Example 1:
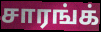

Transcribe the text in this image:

சாரங்க்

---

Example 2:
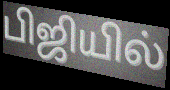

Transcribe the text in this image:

பிஜியில்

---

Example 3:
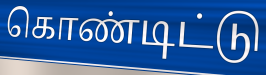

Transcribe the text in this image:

கொண்டிட்டு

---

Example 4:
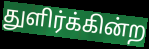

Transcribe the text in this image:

துளிர்க்கின்ற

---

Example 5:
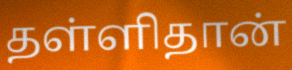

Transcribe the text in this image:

தள்ளிதான்